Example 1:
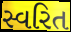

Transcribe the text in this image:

સ્વરિત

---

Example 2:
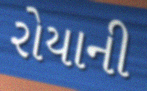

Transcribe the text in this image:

રોયાની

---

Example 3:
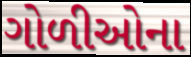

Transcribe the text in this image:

ગોળીઓના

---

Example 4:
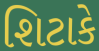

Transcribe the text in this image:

શિટાકે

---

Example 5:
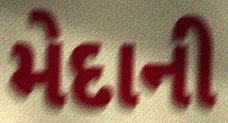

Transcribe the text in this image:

મેદાની